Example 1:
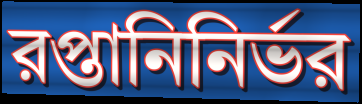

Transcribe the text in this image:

রপ্তানিনির্ভর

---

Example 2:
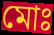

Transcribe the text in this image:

মোঃ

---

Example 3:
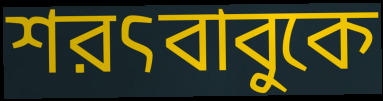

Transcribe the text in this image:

শরৎবাবুকে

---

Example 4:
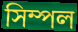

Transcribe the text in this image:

সিম্পল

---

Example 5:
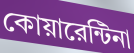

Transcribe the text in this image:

কোয়ারেন্টিনা